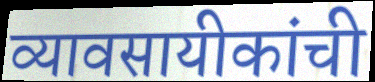
व्यावसायीकांची